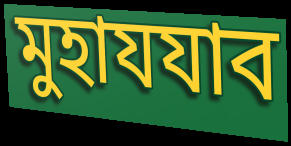
মুহাযযাব